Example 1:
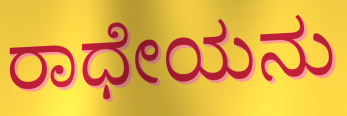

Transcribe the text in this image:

ರಾಧೇಯನು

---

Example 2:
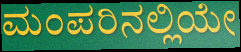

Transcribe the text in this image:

ಮಂಪರಿನಲ್ಲಿಯೇ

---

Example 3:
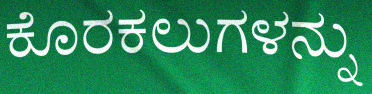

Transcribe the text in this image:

ಕೊರಕಲುಗಳನ್ನು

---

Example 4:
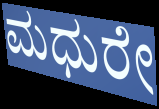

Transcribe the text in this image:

ಮಧುರೇ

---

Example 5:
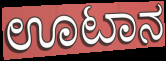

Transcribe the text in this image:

ಊಟಾನ